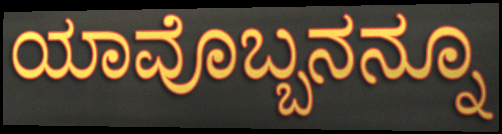
ಯಾವೊಬ್ಬನನ್ನೂ